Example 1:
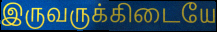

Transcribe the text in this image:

இருவருக்கிடையே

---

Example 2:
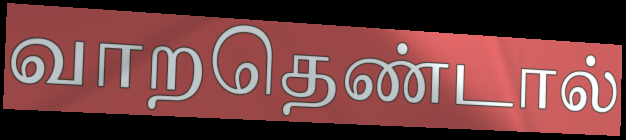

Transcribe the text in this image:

வாறதெண்டால்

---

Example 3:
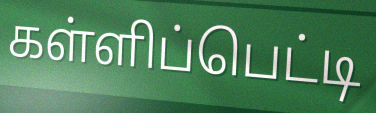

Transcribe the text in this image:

கள்ளிப்பெட்டி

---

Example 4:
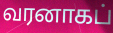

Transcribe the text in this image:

வரனாகப்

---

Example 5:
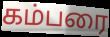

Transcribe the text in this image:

கம்பரை